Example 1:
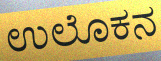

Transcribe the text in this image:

ಉಲೊಕನ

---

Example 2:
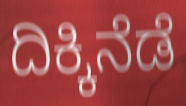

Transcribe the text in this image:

ದಿಕ್ಕಿನೆಡೆ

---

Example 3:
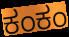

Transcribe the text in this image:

ಕಂಕಂ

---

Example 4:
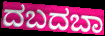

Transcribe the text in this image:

ದಬದಬಾ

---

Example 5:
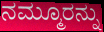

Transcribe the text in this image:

ನಮ್ಮೂರನ್ನು